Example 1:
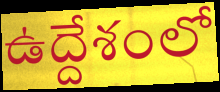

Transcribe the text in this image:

ఉద్దేశంలో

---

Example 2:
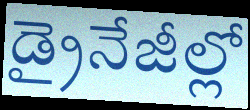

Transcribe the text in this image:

డ్రైనేజీల్లో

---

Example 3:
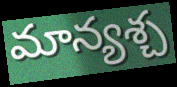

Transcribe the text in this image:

మాన్యశ్చ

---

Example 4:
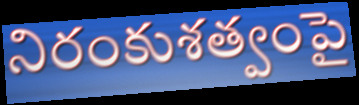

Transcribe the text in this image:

నిరంకుశత్వంపై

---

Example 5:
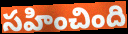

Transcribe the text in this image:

సహించింది